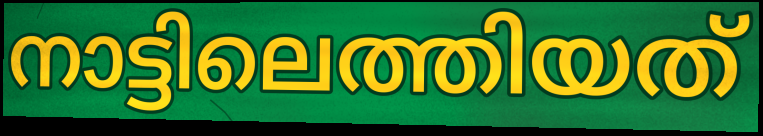
നാട്ടിലെത്തിയത്